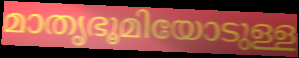
മാതൃഭൂമിയോടുള്ള